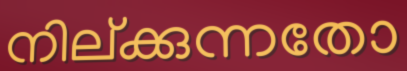
നില്ക്കുന്നതോ